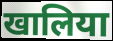
खालिया